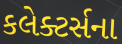
કલેક્ટર્સના